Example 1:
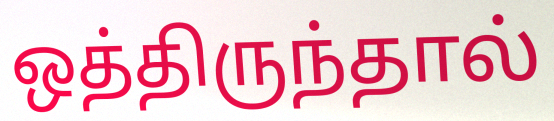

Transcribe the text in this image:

ஒத்திருந்தால்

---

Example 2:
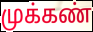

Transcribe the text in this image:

முக்கண்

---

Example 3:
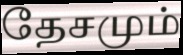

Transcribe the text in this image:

தேசமும்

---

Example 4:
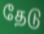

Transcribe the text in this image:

தேடு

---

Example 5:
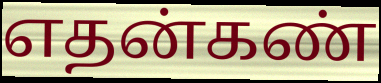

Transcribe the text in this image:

எதன்கண்